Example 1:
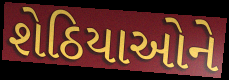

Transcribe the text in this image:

શેઠિયાઓને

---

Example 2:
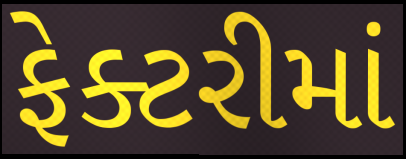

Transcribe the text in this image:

ફેક્ટરીમાં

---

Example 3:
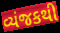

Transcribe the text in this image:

વ્યંજકથી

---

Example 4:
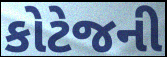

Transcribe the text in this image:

કોટેજની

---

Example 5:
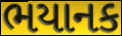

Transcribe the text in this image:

ભયાનક